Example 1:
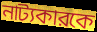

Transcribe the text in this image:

নাট্যকারকে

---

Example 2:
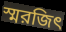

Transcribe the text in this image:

স্মরজিৎ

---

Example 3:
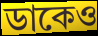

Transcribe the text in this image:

ডাকেও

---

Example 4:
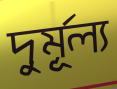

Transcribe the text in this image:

দুর্মূল্য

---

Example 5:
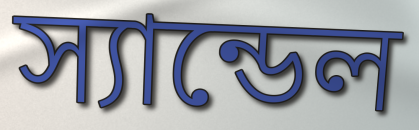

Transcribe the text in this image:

স্যান্ডেল